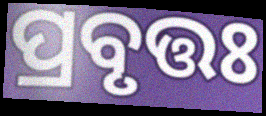
ପ୍ରବୃତ୍ତଃ